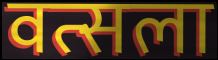
वत्सला